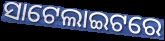
ସାଟେଲାଇଟରେ